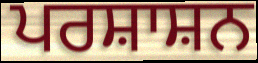
ਪਰਸ਼ਾਸ਼ਨ